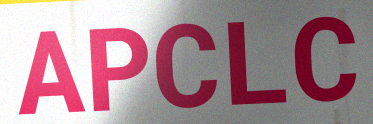
APCLC